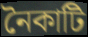
নৈকাটি